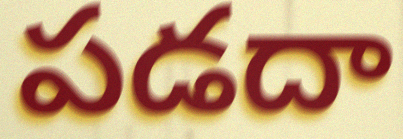
పడదా